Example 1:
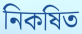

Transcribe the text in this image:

নিকষিত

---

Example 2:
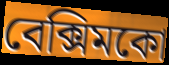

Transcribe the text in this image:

বেক্সিমকো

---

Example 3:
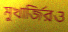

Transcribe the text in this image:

মুখার্জিরও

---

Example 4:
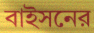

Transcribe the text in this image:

বাইসনের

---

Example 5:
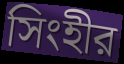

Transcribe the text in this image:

সিংহীর